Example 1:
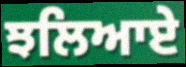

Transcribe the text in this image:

ਝਲਿਆਏ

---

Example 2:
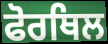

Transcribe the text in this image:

ਫੋਰਥਿਲ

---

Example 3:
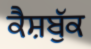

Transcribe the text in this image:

ਕੈਸ਼ਬੁੱਕ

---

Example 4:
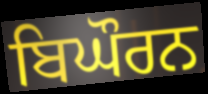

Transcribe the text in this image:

ਬਿਘੌਰਨ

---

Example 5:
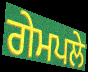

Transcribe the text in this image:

ਗੇਮਪਲੇ